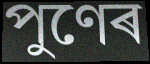
পুণেৰ